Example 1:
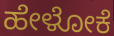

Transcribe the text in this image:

ಹೇಳೋಕೆ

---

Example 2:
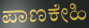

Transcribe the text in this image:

ಪಾಣಕೇಹಿ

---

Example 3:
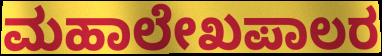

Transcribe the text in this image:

ಮಹಾಲೇಖಪಾಲರ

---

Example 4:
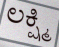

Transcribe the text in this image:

ಲಕ್ಷ್ಮಿ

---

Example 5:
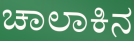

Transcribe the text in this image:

ಚಾಲಾಕಿನ